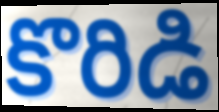
కొరిడి